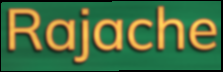
Rajache